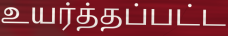
உயர்த்தப்பட்ட